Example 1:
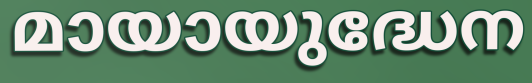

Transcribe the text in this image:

മായായുദ്ധേന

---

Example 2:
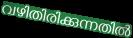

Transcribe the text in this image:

വഴിതിരിക്കുന്നതിൽ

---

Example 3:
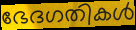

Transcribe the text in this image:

ഭേദഗതികൾ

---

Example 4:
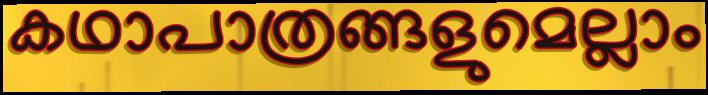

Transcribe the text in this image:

കഥാപാത്രങ്ങളുമെല്ലാം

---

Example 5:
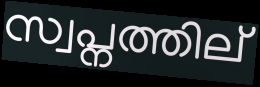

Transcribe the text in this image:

സ്വപ്നത്തില്